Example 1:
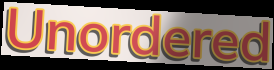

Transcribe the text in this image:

Unordered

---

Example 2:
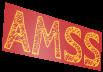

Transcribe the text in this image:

AMSS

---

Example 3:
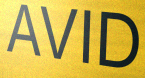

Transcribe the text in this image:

AVID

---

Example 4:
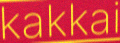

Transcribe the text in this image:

kakkai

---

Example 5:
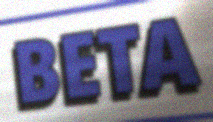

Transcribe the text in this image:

BETA